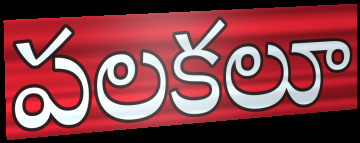
పలకలూ